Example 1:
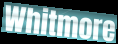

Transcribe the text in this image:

Whitmore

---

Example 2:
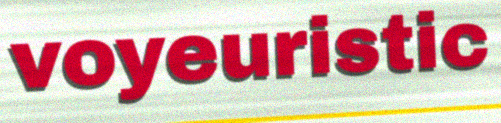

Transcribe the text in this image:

voyeuristic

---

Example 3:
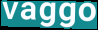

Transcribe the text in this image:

vaggo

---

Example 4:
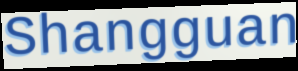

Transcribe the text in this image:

Shangguan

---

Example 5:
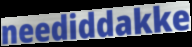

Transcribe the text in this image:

neediddakke